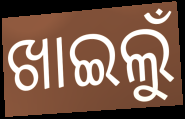
ଖାଇଲୁଁ